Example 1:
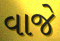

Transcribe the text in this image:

વાજે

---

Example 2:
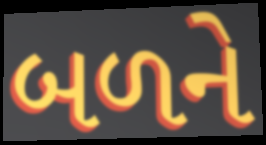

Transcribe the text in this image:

બળને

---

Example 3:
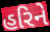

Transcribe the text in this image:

હરિને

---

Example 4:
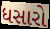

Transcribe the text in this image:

ધસારો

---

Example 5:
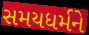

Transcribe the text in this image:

સમયધર્મને